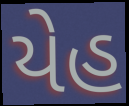
યેહ